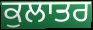
ਕੁਲਾਤਰ